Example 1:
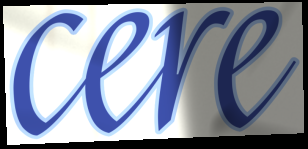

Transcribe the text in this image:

cere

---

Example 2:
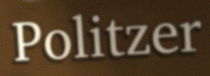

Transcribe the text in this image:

Politzer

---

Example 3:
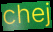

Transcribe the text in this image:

chej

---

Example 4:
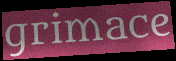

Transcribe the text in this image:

grimace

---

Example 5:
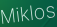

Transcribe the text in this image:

Miklos